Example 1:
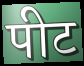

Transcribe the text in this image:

पीट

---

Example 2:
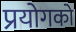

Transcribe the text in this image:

प्रयोगको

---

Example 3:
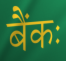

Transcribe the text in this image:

बैंकः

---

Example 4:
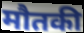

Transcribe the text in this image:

मौतकी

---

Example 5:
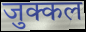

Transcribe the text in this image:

जुक्कल